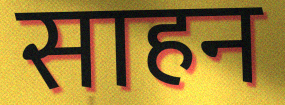
साहन